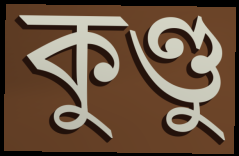
কুণ্ডু